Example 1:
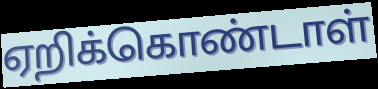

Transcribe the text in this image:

ஏறிக்கொண்டாள்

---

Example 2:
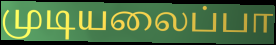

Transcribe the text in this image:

முடியலைப்பா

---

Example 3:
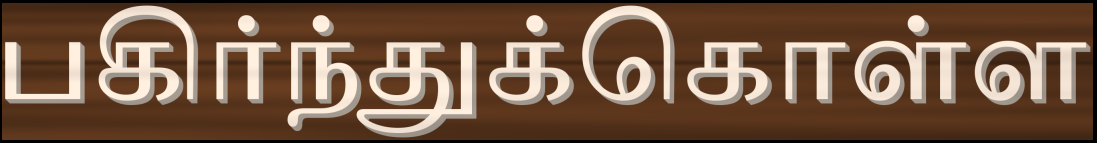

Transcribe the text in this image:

பகிர்ந்துக்கொள்ள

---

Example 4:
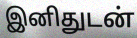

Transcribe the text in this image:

இனிதுடன்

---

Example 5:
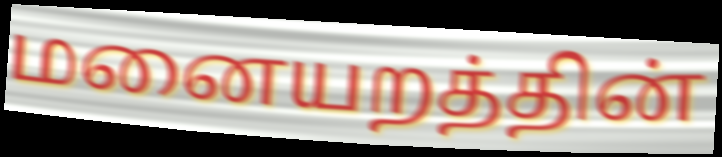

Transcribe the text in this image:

மனையறத்தின்